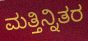
ಮತ್ತಿನ್ನಿತರ